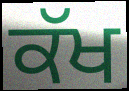
ਕੱਖ